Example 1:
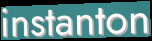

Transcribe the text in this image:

instanton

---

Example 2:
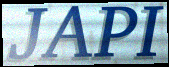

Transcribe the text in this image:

JAPI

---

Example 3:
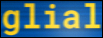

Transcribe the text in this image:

glial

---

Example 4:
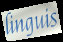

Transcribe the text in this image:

linguis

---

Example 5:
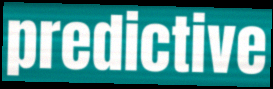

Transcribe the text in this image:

predictive